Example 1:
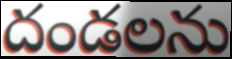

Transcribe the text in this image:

దండలను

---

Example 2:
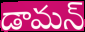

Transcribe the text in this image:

డామన్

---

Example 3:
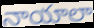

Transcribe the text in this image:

నాయాలా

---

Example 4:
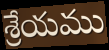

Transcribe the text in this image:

శ్రేయము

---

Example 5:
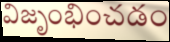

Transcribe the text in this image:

విజృంభించడం